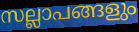
സല്ലാപങ്ങളും